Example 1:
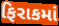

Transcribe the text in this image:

ફિરાકમાં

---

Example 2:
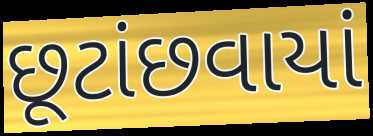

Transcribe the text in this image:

છૂટાંછવાયાં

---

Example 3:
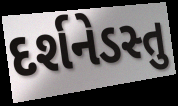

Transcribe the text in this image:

દર્શનેડસ્તુ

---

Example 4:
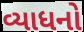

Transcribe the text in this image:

વ્યાધનો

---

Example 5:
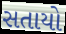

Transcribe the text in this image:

સતાયો